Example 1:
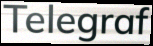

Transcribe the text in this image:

Telegraf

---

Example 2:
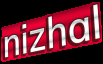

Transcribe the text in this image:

nizhal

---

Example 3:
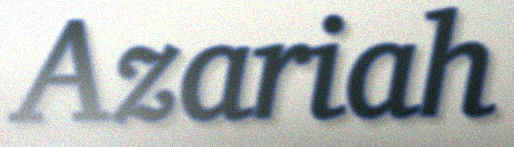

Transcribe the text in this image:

Azariah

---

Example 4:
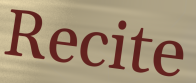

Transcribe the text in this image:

Recite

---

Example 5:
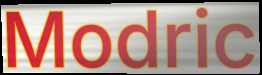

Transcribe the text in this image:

Modric